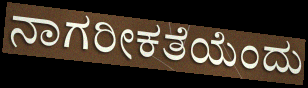
ನಾಗರೀಕತೆಯೆಂದು